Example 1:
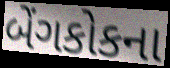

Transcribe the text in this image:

બેંગકોકના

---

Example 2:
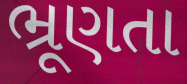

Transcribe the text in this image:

ભ્રૂણતા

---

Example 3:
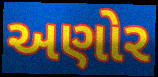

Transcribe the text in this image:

અણોર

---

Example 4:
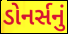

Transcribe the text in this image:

ડોનર્સનું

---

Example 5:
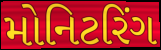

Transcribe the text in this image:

મોનિટરિંગ